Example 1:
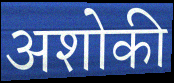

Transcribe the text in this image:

अशोकी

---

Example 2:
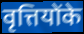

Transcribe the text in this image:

वृत्तियोंके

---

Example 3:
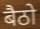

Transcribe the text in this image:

बैठो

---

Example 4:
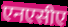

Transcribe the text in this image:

एनएसीए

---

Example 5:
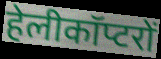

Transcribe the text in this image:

हेलीकॉप्टरों